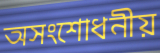
অসংশোধনীয়